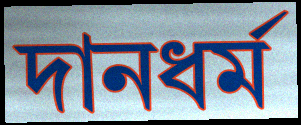
দানধর্ম